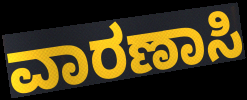
ವಾರಣಾಸಿ